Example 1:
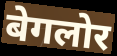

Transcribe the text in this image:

बेगलोर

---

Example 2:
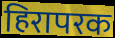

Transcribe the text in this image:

हिरापरक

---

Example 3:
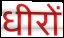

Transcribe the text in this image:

धीरों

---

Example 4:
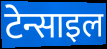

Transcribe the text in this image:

टेन्साइल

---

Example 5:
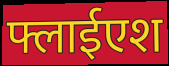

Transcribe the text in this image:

फ्लाईएश